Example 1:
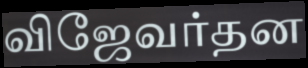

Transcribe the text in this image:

விஜேவர்தன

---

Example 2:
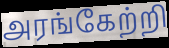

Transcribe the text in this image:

அரங்கேற்றி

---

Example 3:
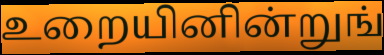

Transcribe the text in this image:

உறையினின்றுங்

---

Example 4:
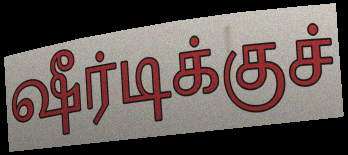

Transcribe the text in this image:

ஷீர்டிக்குச்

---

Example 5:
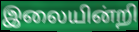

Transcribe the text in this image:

இலையின்றி